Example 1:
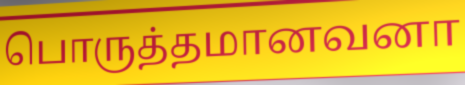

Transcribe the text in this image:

பொருத்தமானவனா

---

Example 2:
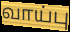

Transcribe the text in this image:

வாய்பு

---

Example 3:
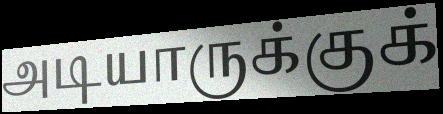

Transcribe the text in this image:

அடியாருக்குக்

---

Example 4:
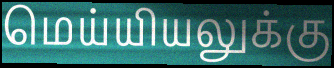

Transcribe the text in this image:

மெய்யியலுக்கு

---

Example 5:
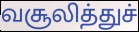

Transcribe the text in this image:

வசூலித்துச்